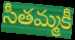
సీతమ్మకీ